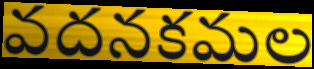
వదనకమల